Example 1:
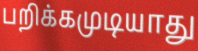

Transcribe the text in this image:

பறிக்கமுடியாது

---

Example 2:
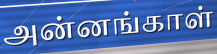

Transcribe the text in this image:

அன்னங்காள்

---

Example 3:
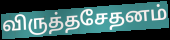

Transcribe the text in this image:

விருத்தசேதனம்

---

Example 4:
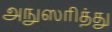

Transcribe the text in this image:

அநுஸரித்து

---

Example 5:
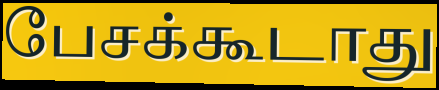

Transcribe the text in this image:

பேசக்கூடாது